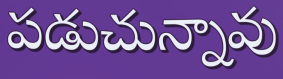
పడుచున్నావు